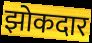
झोकदार